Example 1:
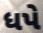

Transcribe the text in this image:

ધપે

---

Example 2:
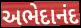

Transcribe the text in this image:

અભેદાનંદ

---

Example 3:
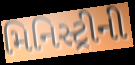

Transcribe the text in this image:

મિનિસ્ટ્રીની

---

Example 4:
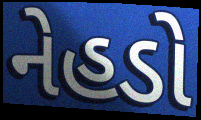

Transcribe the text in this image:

નેહડો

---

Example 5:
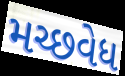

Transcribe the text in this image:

મચ્છવેધ